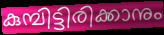
കുമ്പിട്ടിരിക്കാനും